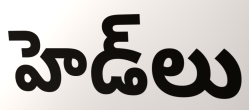
హెడ్‌లు